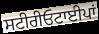
ਸਟੀਰੀਓਟਾਈਪਾਂ